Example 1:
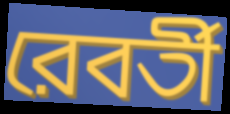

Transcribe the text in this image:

রেবর্তী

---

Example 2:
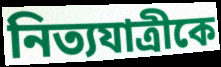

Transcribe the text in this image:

নিত্যযাত্রীকে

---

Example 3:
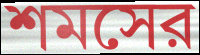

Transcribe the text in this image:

শমসের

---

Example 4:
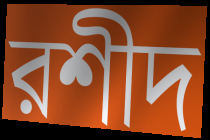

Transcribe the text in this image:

রশীদ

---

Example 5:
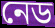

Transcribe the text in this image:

নেড